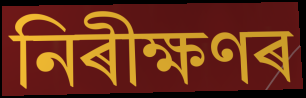
নিৰীক্ষণৰ